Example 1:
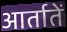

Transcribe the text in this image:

आर्तातें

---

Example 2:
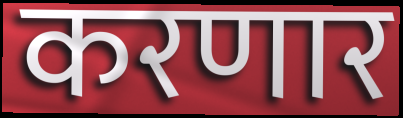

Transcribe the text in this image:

करणार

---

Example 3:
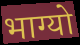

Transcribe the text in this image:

भाग्यो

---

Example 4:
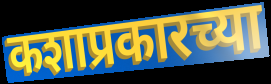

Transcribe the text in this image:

कशाप्रकारच्या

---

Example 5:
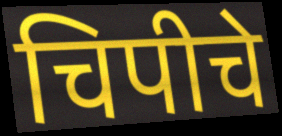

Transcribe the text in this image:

चिपीचे